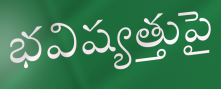
భవిష్యత్తుపై